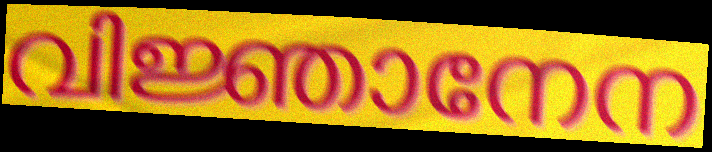
വിജ്ഞാനേന